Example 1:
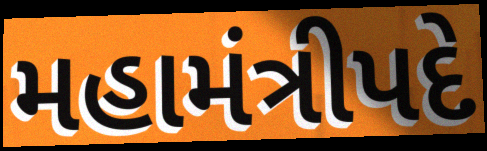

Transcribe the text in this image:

મહામંત્રીપદે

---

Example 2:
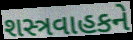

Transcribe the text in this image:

શસ્ત્રવાહકને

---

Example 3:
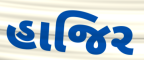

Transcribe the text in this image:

હાજિર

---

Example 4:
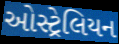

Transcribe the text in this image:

ઓસ્ટ્રેલિયન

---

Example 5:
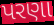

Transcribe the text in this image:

પરણા